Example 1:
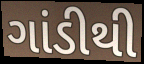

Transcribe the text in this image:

ગાંડીથી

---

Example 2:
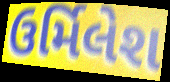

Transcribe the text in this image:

ઉર્મિલેશ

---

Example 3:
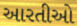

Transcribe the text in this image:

આરતીઓ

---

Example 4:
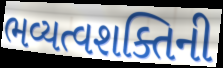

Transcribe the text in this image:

ભવ્યત્વશક્તિની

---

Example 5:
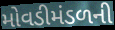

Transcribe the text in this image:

મોવડીમંડળની